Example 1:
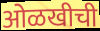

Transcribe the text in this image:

ओळखीची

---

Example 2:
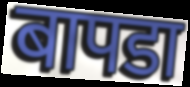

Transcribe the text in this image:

बापडा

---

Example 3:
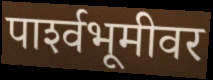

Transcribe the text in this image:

पार्श्‍वभूमीवर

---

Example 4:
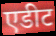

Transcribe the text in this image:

एडीट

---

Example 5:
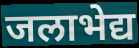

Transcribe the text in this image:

जलाभेद्य